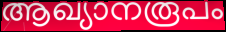
ആഖ്യാനരൂപം